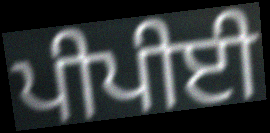
ਪੀਪੀਈ